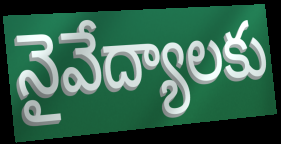
నైవేద్యాలకు